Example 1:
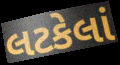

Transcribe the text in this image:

લટકેલાં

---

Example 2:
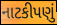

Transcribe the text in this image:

નાટકીપણું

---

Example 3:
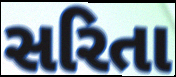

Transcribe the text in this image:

સરિતા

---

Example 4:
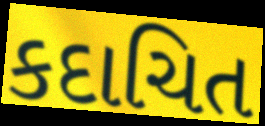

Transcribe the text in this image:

કદાચિત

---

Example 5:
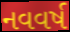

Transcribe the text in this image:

નવવર્ષ